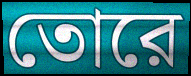
তোরে